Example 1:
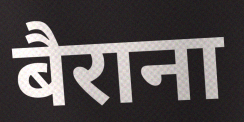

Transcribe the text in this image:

बैराना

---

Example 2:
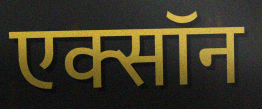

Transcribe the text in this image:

एक्सॉन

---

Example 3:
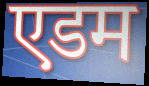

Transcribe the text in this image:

एडम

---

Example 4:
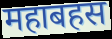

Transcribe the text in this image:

महाबहस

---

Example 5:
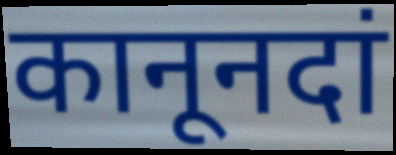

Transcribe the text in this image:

कानूनदां